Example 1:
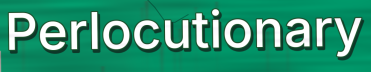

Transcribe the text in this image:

Perlocutionary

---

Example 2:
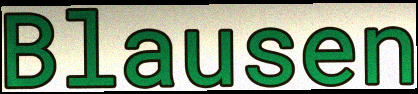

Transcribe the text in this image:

Blausen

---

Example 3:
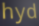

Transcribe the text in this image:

hyd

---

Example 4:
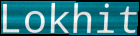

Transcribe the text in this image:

Lokhit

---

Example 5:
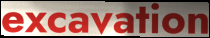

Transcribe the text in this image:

excavation